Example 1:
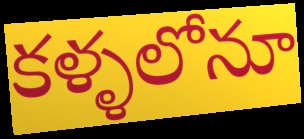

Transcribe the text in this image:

కళ్ళలోనూ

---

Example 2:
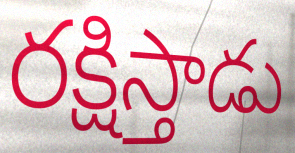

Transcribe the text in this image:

రక్షిస్తాడు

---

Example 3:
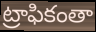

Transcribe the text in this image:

ట్రాఫికంతా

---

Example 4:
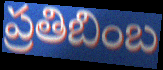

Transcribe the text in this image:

ప్రతిబింబ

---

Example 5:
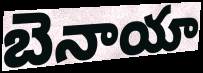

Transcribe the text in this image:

బెనాయా